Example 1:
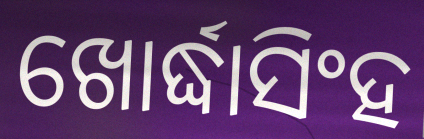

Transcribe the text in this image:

ଖୋର୍ଦ୍ଧାସିଂହ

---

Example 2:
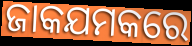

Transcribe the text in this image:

ଜାକଯମକରେ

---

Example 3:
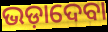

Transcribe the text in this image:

ଭଡ଼ାଦେବା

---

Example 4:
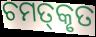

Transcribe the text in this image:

ଚମତ୍‌କୃତ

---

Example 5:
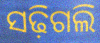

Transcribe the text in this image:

ସଢ଼ିଗଲି